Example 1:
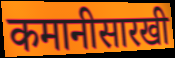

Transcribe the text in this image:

कमानीसारखी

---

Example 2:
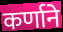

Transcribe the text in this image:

कर्णाने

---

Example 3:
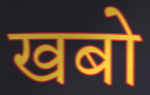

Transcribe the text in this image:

खबो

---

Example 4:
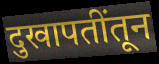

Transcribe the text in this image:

दुखापतींतून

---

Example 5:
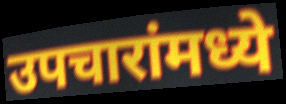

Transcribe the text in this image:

उपचारांमध्ये